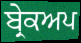
ਬ੍ਰੇਕਅਪ